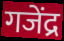
गजेंद्र